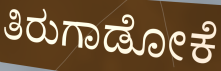
ತಿರುಗಾಡೋಕೆ